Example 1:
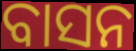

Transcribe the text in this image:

ବାସନ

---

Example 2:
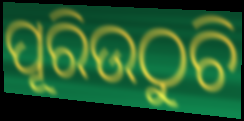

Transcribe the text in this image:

ପୂରିଉଠୁଚି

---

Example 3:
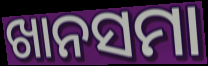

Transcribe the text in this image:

ଖାନସମା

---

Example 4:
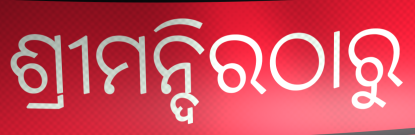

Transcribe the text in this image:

ଶ୍ରୀମନ୍ଦିରଠାରୁ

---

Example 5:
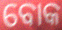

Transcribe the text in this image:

ବୋକ